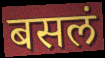
बसलं